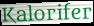
Kalorifer